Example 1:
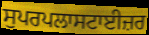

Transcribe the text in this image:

ਸੁਪਰਪਲਾਸਟਾਈਜ਼ਰ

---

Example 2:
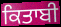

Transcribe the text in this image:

ਕਿਤਾਬੀ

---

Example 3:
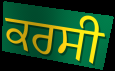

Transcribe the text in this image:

ਕਰਸੀ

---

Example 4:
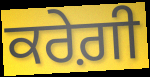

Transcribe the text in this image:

ਕਰੇਗ਼ੀ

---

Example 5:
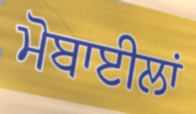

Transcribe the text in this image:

ਮੋਬਾਈਲਾਂ